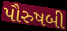
પૌરુષબી